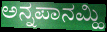
ಅನ್ನಪಾನಮ್ಹಿ